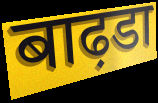
बाढ़डा